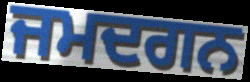
ਜਮਦਗਨ